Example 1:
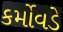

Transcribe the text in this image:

કર્મોવડે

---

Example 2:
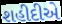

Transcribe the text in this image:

શહીદીએ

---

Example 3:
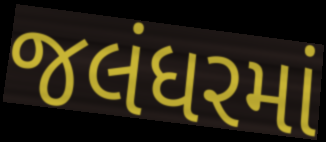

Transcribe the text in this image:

જલંધરમાં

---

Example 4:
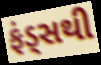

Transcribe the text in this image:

ફંડ્સથી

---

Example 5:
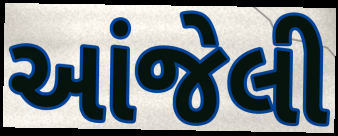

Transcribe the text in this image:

આંજેલી